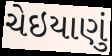
ચેઇયાણું